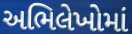
અભિલેખોમાં